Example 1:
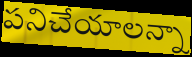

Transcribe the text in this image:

పనిచేయాలన్నా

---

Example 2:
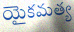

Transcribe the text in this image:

యైకమత్య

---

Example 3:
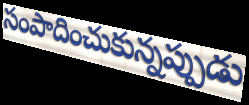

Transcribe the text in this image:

సంపాదించుకున్నప్పుడు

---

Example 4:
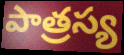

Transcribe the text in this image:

పాత్రస్య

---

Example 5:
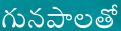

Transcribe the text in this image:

గునపాలతో